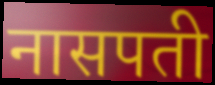
नासपती